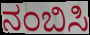
ನಂಬಿಸಿ